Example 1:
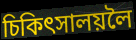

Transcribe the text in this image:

চিকিৎসালয়লৈ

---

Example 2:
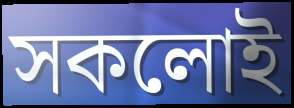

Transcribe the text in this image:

সকলোই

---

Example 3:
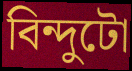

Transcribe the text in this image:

বিন্দুটো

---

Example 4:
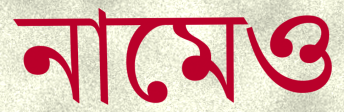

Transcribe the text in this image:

নামেও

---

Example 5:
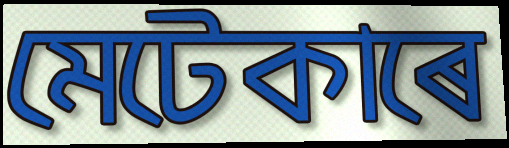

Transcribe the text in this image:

মেটেকাৰে